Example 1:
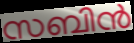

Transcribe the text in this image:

സബിൻ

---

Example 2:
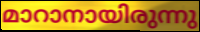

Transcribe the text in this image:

മാറാനായിരുന്നു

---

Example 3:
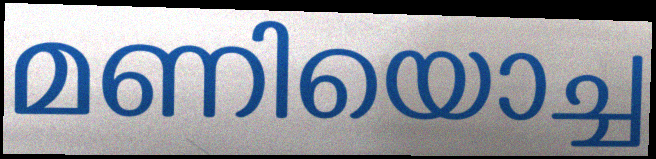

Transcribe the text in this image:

മണിയൊച്ച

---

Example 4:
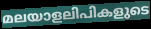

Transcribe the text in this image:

മലയാളലിപികളുടെ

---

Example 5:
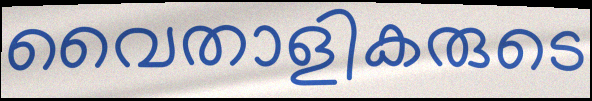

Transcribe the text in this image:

വൈതാളികരുടെ